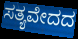
ಸತ್ಯವೇದದ